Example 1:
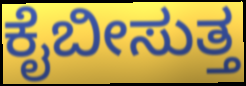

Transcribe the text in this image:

ಕೈಬೀಸುತ್ತ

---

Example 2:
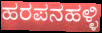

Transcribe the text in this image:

ಹರಪನಹಳ್ಳಿ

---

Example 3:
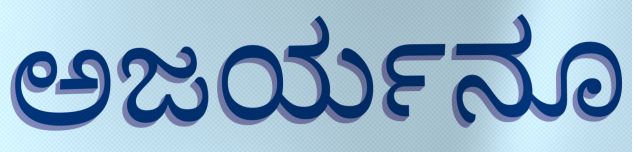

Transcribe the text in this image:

ಅಜರ್ಯನೂ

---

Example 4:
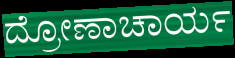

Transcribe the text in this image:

ದ್ರೋಣಾಚಾರ್ಯ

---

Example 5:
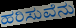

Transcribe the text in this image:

ಹರಿಸುವೆನು